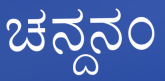
ಚನ್ದನಂ